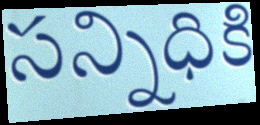
సన్నిధికి